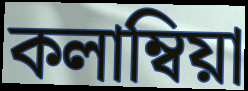
কলাম্বিয়া